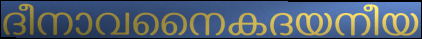
ദീനാവനൈകദയനീയ